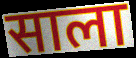
साला